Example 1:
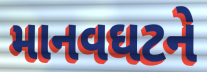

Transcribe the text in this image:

માનવઘટને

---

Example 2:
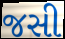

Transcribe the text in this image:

જસી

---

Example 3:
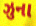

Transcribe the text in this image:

ઝુના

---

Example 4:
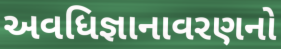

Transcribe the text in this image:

અવધિજ્ઞાનાવરણનો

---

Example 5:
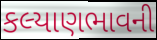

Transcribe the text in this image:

કલ્યાણભાવની